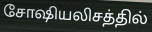
சோஷியலிசத்தில்